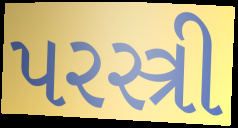
પરસ્ત્રી